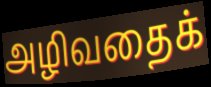
அழிவதைக்